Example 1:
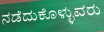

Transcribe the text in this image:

ನಡೆದುಕೊಳ್ಳುವರು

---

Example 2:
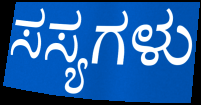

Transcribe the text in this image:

ಸಸ್ಯಗಳು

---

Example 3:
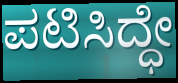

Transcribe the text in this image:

ಪಟಿಸಿದ್ಧೇ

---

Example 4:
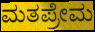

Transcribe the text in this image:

ಮತಪ್ರೇಮ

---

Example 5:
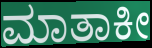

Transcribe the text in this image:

ಮಾತಾಕೀ